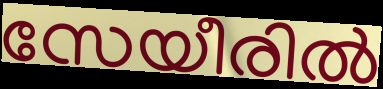
സേയീരിൽ